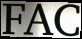
FAC